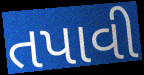
તપાવી